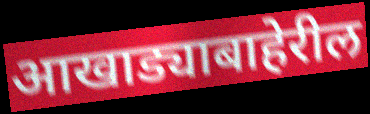
आखाड्याबाहेरील